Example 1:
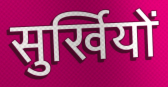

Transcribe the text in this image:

सुर्खियों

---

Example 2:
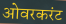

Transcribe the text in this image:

ओवरकरंट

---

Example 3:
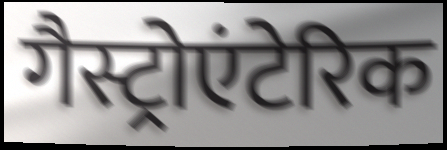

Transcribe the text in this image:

गैस्ट्रोएंटेरिक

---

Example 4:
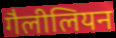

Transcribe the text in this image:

गैलीलियन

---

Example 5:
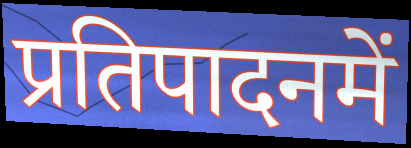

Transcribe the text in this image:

प्रतिपादनमें